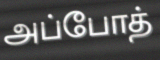
அப்போத்